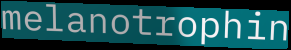
melanotrophin